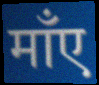
माँए